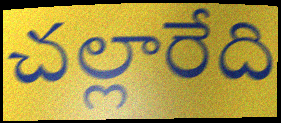
చల్లారేది